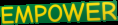
EMPOWER